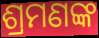
ଶ୍ରମଣଙ୍କ